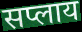
सप्लाय